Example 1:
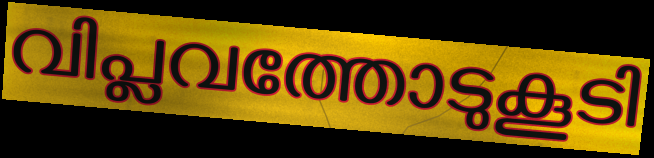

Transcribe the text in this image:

വിപ്ലവത്തോടുകൂടി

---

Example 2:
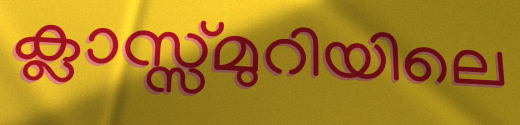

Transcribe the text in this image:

ക്ലാസ്സ്മുറിയിലെ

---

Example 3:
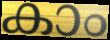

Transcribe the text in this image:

കാം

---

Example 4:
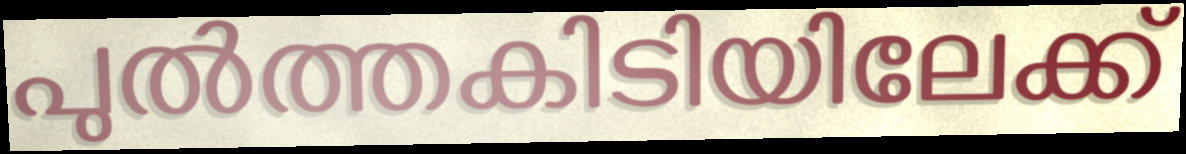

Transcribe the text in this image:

പുൽത്തകിടിയിലേക്ക്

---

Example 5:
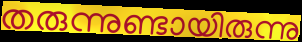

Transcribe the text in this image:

തരുന്നുണ്ടായിരുന്നു